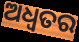
ଅଧ୍ଵତର